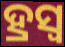
ହ୍ରସ୍ୱ